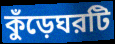
কুঁড়েঘরটি